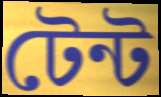
টেন্ট